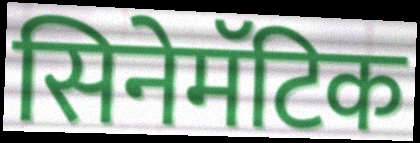
सिनेमॅटिक